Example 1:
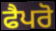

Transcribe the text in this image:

ਫੈਪਰੋ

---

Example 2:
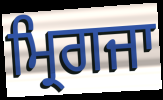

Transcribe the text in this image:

ਮ੍ਰਿਗਜਾ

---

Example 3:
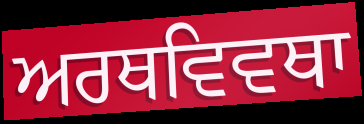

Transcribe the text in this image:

ਅਰਥਵਿਵਥਾ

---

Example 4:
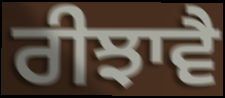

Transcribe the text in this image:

ਰੀਝਾਵੈ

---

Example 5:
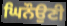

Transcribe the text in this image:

ਘਿਨੌਉਣੀ